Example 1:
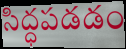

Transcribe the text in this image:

సిద్ధపడడం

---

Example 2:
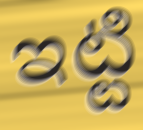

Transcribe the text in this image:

ఇట్టి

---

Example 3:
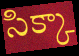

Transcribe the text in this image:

సిక్కా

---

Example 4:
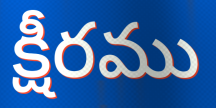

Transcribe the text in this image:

క్షీరము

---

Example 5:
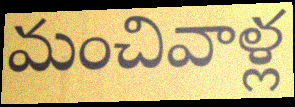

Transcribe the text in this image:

మంచివాళ్ల